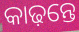
କାଢ଼ନ୍ତେ